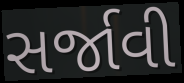
સર્જાવી